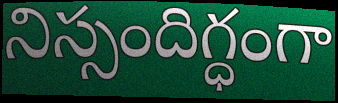
నిస్సందిగ్ధంగా